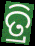
ତ୍ରି